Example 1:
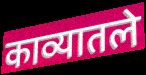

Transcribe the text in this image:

काव्यातले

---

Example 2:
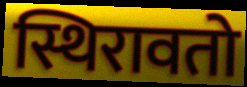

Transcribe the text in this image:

स्थिरावतो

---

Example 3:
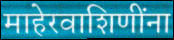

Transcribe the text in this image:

माहेरवाशिणींना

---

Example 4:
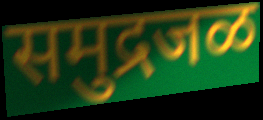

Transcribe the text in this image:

समुद्रजळ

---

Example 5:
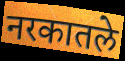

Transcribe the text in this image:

नरकातले